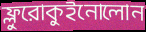
ফ্লুরোকুইনোলোন